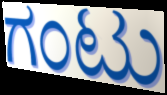
ಗಂಟು